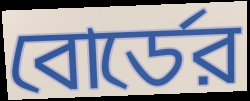
বোর্ডের